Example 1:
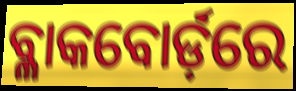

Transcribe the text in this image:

ବ୍ଳାକବୋର୍ଡ଼ରେ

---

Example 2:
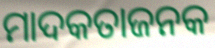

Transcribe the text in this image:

ମାଦକତାଜନକ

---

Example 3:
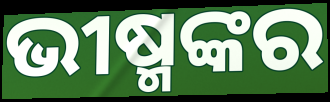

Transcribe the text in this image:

ଭୀଷ୍ମଙ୍କର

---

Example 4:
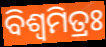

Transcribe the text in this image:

ବିଶ୍ବମିତ୍ରଃ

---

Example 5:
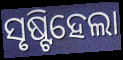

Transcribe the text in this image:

ସୃଷ୍ଟିହେଲା